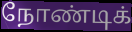
நோண்டிக்